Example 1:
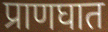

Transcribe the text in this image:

प्राणघात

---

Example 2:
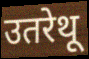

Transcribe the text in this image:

उतरेथू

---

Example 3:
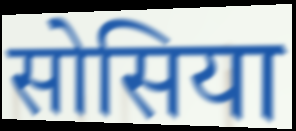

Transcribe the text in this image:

सोसिया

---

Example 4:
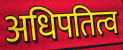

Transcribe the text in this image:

अधिपतित्व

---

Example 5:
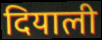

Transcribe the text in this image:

दियाली